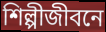
শিল্পীজীবনে